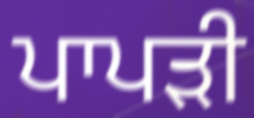
ਪਾਪੜੀ